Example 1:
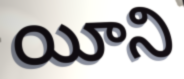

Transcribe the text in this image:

యీని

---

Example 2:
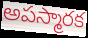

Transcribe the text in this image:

అపస్మారక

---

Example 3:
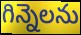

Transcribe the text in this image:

గిన్నెలను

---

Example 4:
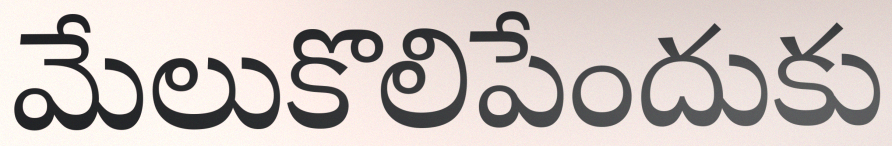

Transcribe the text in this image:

మేలుకొలిపేందుకు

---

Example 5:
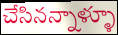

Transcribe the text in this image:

చేసినన్నాళ్ళూ